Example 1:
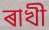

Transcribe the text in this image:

ৰাখী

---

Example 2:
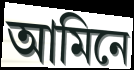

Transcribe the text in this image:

আমিনে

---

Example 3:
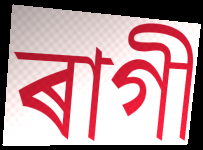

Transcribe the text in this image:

ৰাগী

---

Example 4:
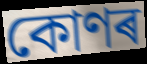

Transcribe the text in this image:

কোণৰ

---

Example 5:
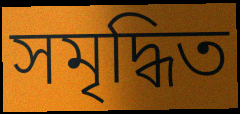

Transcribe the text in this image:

সমৃদ্ধিত